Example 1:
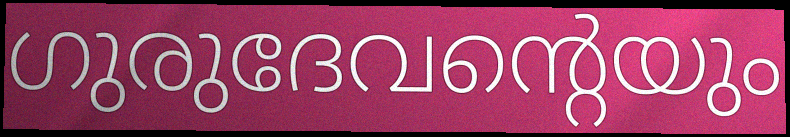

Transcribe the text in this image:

ഗുരുദേവന്റെയും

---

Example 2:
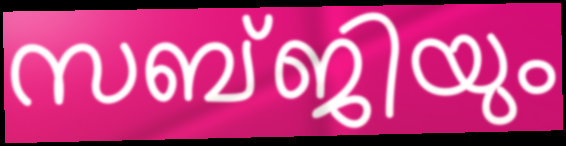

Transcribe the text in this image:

സബ്ജിയും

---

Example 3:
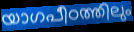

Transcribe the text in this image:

യാഗപീഠത്തിലും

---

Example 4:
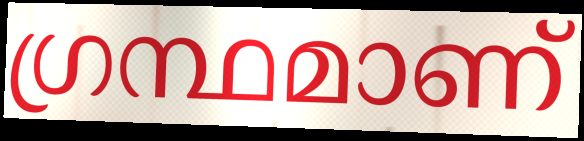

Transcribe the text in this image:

ഗ്രന്ഥമാണ്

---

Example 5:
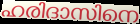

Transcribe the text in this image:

ഹരിദാസിനെ